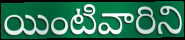
యింటివారిని